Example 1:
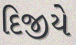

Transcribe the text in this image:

દિજીયે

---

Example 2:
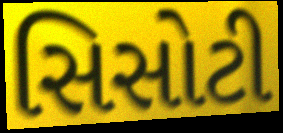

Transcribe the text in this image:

સિસોટી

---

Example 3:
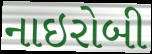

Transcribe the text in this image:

નાઇરોબી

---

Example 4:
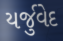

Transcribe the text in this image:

યર્જુવેદ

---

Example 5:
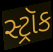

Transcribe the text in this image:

સ્ટ્રૉક